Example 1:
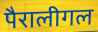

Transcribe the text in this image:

पैरालीगल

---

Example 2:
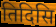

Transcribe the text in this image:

तिदिसि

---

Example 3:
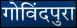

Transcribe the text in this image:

गोविंदपुरा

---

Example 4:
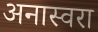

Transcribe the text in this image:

अनास्वरा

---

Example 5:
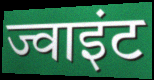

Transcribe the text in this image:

ज्वाइंट